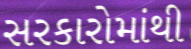
સરકારોમાંથી